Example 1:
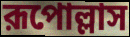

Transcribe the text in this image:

রূপোল্লাস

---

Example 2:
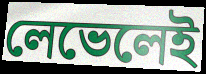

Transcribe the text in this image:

লেভেলেই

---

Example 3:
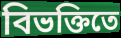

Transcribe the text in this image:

বিভক্তিতে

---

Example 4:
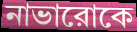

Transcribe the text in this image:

নাভারোকে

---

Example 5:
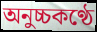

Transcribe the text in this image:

অনুচ্চকণ্ঠে